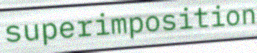
superimposition